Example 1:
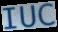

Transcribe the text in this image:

IUC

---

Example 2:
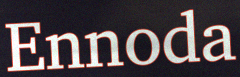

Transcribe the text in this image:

Ennoda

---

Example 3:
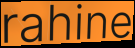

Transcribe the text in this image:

rahine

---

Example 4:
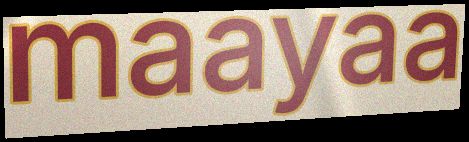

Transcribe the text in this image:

maayaa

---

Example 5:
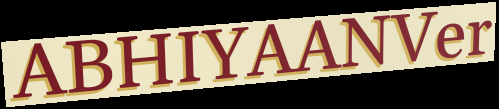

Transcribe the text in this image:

ABHIYAANVer